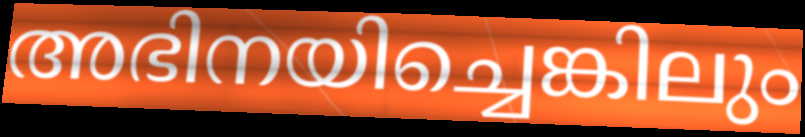
അഭിനയിച്ചെങ്കിലും